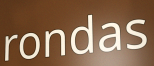
rondas